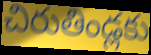
చిరుతిండ్లకు